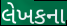
લેખકના